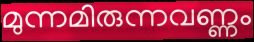
മുന്നമിരുന്നവണ്ണം